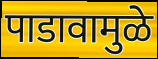
पाडावामुळे